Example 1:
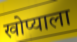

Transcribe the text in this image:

खोप्याला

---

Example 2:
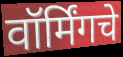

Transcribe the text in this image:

वॉर्मिंगचे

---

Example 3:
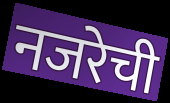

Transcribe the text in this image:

नजरेची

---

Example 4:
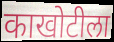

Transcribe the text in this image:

काखोटीला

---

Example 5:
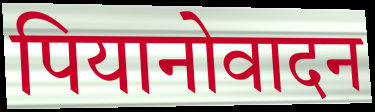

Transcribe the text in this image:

पियानोवादन